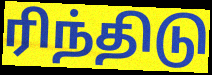
ரிந்திடு